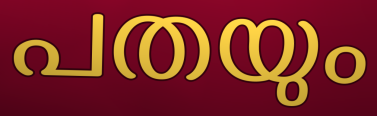
പതയും